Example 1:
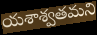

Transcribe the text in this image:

యశాశ్వతమని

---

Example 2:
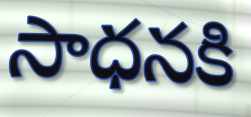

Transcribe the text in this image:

సాధనకి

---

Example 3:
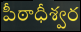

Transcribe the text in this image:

పీఠాధీశ్వర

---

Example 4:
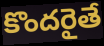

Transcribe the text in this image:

కొందరైతే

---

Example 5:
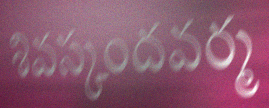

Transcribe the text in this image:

శివస్కందవర్మ